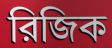
রিজিক